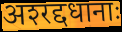
अश्रद्दधानाः